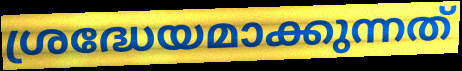
ശ്രദ്ധേയമാക്കുന്നത്